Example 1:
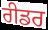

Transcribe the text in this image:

ਰੀਡਰ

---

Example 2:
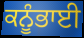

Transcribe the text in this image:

ਕਨੂੰਭਾਈ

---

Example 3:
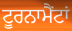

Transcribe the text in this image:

ਟੂਰਨਾਮੈਂਟਾਂ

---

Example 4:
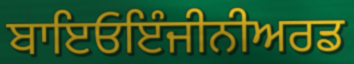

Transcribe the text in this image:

ਬਾਇਓਇੰਜੀਨੀਅਰਡ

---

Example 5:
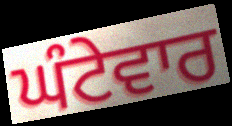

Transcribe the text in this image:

ਘੰਟੇਵਾਰ